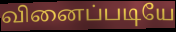
வினைப்படியே